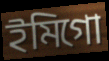
ইমিগো